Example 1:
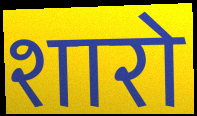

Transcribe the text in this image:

शारो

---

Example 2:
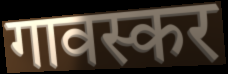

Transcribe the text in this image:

गावस्कर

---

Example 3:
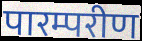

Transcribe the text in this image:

पारम्परीण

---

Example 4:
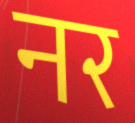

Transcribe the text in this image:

नर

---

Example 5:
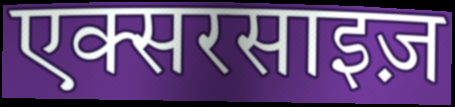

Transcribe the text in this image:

एक्सरसाइज़